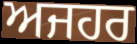
ਅਜਹਰ